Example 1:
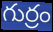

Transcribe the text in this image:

గుర్రం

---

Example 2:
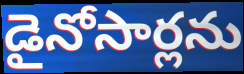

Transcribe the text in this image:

డైనోసార్లను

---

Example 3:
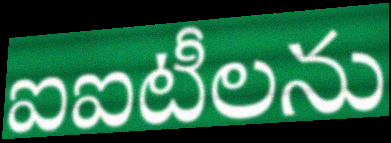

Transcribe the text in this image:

ఐఐటీలను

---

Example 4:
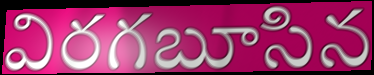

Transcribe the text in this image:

విరగబూసిన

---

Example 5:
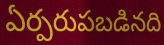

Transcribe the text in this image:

ఏర్పరుపబడినది